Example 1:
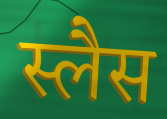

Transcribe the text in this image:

स्लैस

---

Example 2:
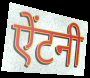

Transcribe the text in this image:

ऐंटनी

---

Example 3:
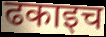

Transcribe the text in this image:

ढकाइच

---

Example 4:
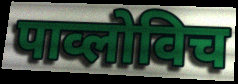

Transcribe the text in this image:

पाव्लोविच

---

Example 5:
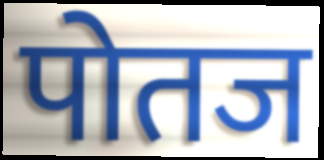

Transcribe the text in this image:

पोतज